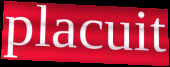
placuit